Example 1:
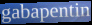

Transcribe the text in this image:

gabapentin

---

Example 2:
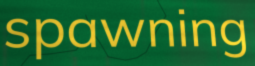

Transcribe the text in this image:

spawning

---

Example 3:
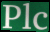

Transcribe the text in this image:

Plc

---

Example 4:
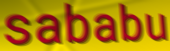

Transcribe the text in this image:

sababu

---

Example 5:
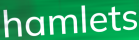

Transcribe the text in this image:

hamlets